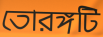
তোরঙ্গটি